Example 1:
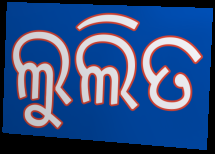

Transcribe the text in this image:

ଲୁଲିତ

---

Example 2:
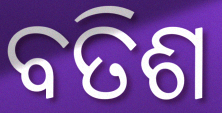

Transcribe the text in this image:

ବତିଶ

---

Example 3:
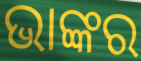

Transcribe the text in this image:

ଭାଙ୍କର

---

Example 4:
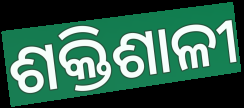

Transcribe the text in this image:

ଶକ୍ତିଶାଳୀ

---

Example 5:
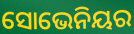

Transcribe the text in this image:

ସୋଭେନିୟର